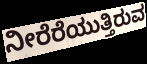
ನೀರೆರೆಯುತ್ತಿರುವ